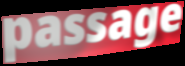
passage